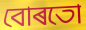
বোৰতো